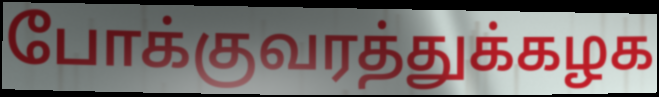
போக்குவரத்துக்கழக